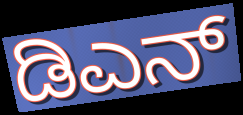
ಡಿಎನ್